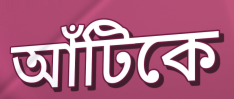
আঁটিকে